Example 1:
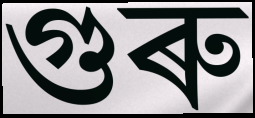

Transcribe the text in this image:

গুৰু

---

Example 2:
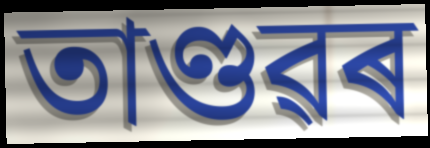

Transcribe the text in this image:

তাণ্ডৱৰ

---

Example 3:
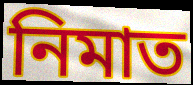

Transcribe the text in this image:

নিমাত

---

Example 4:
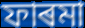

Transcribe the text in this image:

ফাৰমা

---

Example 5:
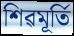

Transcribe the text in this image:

শিৱমূৰ্তি